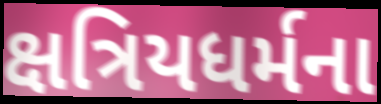
ક્ષત્રિયધર્મના